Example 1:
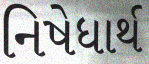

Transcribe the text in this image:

નિષેધાર્થ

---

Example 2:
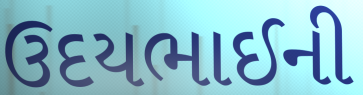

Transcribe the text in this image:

ઉદયભાઈની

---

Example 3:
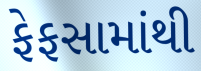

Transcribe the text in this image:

ફેફસામાંથી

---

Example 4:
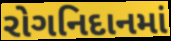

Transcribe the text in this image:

રોગનિદાનમાં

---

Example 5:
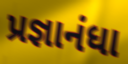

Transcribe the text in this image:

પ્રજ્ઞાનંધા